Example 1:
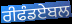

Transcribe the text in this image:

ਰੀਫੰਡਏਬਲ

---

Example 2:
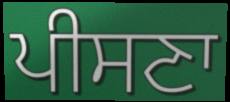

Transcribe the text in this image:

ਪੀਸਣਾ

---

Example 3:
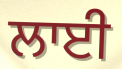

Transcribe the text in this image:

ਲਾਈ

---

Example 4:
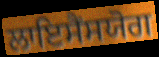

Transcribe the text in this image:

ਲਾਇਸੈਂਸਯੋਗ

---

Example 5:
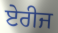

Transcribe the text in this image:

ਏਰੀਜ